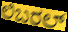
ಲಿಬರಲ್